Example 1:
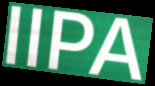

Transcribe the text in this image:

IIPA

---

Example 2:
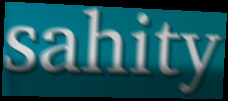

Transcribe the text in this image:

sahity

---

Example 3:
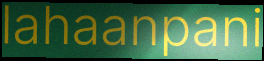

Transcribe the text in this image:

lahaanpani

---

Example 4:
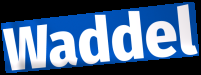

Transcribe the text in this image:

Waddel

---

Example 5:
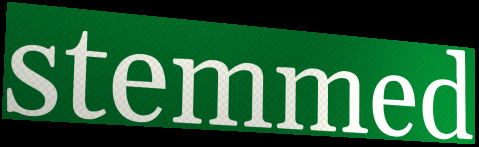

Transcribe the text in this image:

stemmed